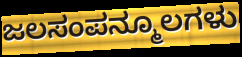
ಜಲಸಂಪನ್ಮೂಲಗಳು